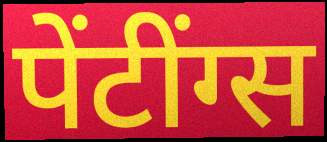
पेंटींग्स